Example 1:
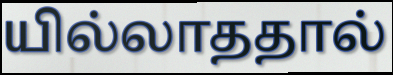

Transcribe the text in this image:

யில்லாததால்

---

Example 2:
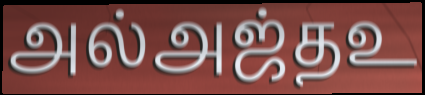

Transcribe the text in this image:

அல்அஜ்தஉ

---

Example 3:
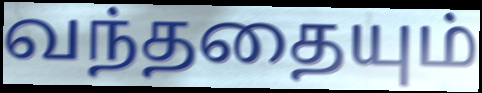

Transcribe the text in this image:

வந்ததையும்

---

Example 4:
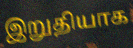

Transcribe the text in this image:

இறுதியாக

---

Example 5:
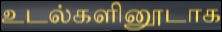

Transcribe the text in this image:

உடல்களினூடாக